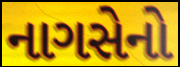
નાગસેનો